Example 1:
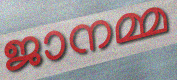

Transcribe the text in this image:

ജാനമ്മ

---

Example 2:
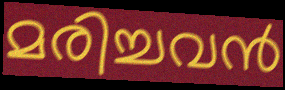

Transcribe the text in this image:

മരിച്ചവൻ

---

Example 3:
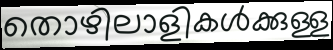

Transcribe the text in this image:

തൊഴിലാളികൾക്കുള്ള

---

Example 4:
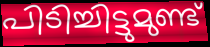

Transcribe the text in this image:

പിടിച്ചിട്ടുമുണ്ട്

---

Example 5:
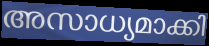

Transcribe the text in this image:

അസാധ്യമാക്കി